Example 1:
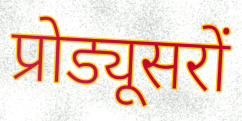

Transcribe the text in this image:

प्रोड्यूसरों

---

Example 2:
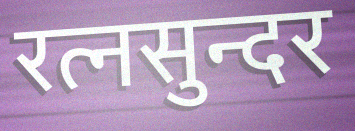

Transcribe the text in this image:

रत्नसुन्दर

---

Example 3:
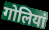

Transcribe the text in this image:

गोलियां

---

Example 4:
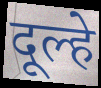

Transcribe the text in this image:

दूल्हे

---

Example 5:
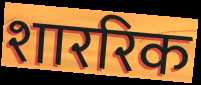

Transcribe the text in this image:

शाररिक